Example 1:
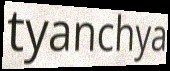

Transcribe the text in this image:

tyanchya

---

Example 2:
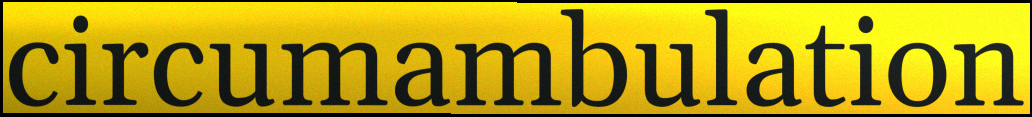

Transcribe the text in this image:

circumambulation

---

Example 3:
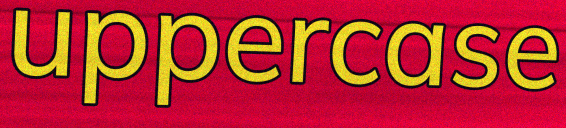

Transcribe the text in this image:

uppercase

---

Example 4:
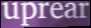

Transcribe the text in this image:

uprear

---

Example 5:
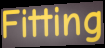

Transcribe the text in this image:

Fitting